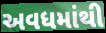
અવધમાંથી